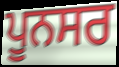
ਪੂਨਸਰ